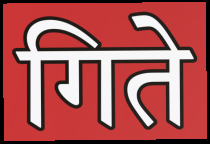
गिते